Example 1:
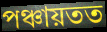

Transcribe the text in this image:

পঞ্চায়তত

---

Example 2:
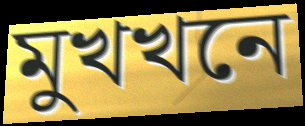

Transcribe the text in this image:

মুখখনে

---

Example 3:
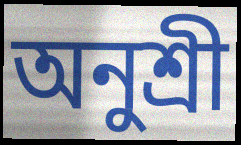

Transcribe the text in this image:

অনুশ্ৰী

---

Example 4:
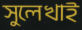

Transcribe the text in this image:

সুলেখাই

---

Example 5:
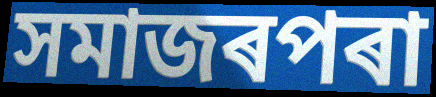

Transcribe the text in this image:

সমাজৰপৰা